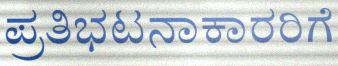
ಪ್ರತಿಭಟನಾಕಾರರಿಗೆ